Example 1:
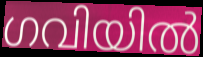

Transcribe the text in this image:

ഗവിയിൽ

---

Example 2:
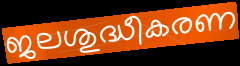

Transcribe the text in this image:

ജലശുദ്ധീകരണ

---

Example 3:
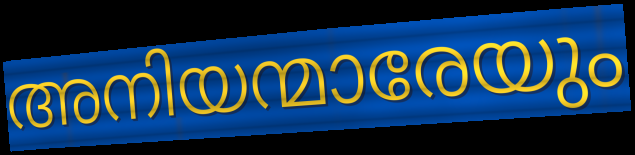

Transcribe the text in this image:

അനിയന്മാരേയും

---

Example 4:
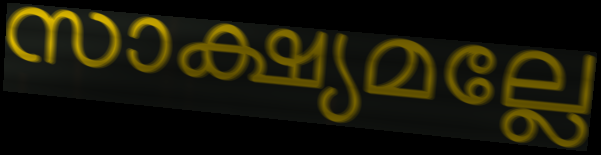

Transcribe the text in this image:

സാക്ഷ്യമല്ലേ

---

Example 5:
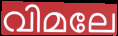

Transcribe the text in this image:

വിമലേ